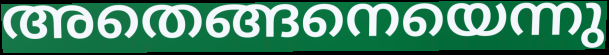
അതെങ്ങനെയെന്നു